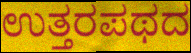
ಉತ್ತರಪಥದ